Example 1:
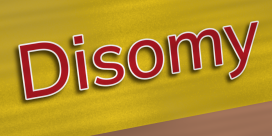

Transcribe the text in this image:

Disomy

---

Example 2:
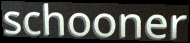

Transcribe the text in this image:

schooner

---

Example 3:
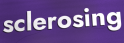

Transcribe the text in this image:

sclerosing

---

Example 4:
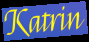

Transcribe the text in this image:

Katrin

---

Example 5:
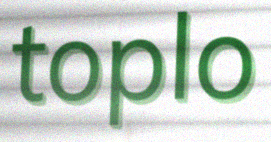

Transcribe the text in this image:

toplo